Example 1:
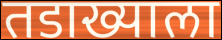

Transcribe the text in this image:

तडाख्याला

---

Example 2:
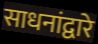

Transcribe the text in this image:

साधनांद्वारे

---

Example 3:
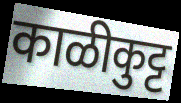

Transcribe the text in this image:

काळीकुट्ट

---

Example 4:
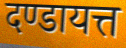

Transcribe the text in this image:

दण्डायत्त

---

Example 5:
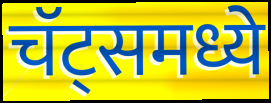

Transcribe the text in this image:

चॅट्समध्ये